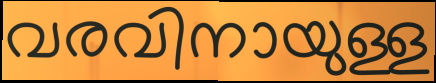
വരവിനായുള്ള